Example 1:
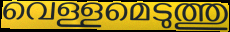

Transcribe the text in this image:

വെള്ളമെടുത്തു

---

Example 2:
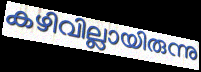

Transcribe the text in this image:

കഴിവില്ലായിരുന്നു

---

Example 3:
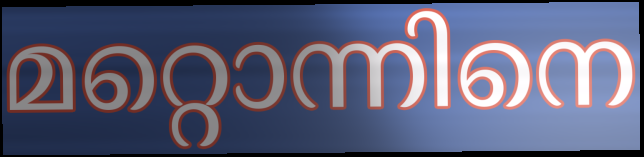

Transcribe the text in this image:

മറ്റൊന്നിനെ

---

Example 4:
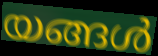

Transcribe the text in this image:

യങ്ങൾ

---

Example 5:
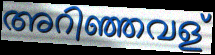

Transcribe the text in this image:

അറിഞ്ഞവള്